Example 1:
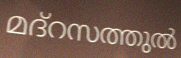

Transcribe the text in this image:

മദ്റസത്തുൽ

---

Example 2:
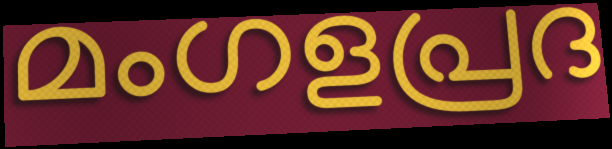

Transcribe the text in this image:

മംഗളപ്രദ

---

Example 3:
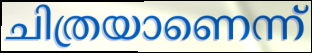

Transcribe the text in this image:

ചിത്രയാണെന്ന്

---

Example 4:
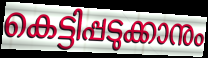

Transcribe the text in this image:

കെട്ടിപ്പടുക്കാനും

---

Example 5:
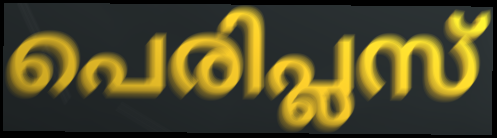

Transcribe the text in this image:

പെരിപ്ലസ്